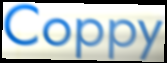
Coppy